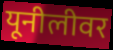
यूनीलीवर